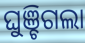
ଘୁଞ୍ଚିଗଲା